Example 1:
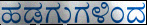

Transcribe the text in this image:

ಹಡಗುಗಳಿಂದ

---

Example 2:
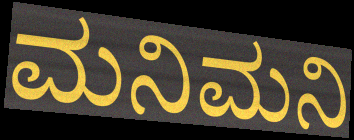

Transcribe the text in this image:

ಮನಿಮನಿ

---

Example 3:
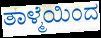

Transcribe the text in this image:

ತಾಳ್ಮೆಯಿಂದ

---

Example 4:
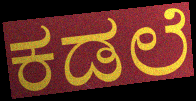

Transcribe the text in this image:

ಕಡಲೆ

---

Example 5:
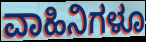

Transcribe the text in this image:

ವಾಹಿನಿಗಳೂ